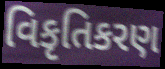
વિકૃતિકરણ